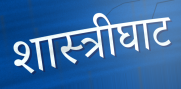
शास्त्रीघाट